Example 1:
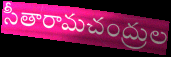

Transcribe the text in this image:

సీతారామచంద్రుల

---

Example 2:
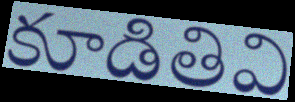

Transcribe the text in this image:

కూడితివి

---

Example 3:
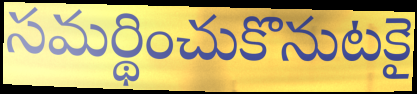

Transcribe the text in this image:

సమర్థించుకొనుటకై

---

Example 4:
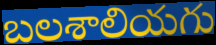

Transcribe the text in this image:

బలశాలియగు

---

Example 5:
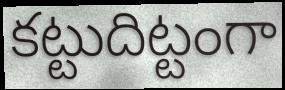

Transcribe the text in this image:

కట్టుదిట్టంగా